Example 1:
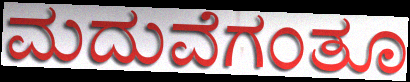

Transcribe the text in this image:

ಮದುವೆಗಂತೂ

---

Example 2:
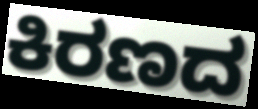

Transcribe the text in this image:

ಕಿರಣದ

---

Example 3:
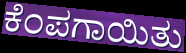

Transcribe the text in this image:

ಕೆಂಪಗಾಯಿತು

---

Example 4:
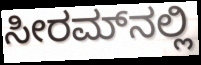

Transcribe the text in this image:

ಸೀರಮ್‌ನಲ್ಲಿ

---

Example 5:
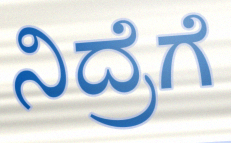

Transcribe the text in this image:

ನಿದ್ರೆಗೆ